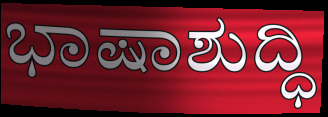
ಭಾಷಾಶುದ್ಧಿ